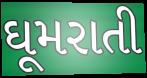
ઘૂમરાતી